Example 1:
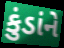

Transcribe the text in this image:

કુંડાંને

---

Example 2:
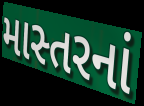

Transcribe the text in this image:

માસ્તરનાં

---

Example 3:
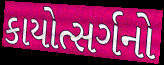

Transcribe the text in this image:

કાયોત્સર્ગનો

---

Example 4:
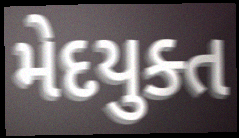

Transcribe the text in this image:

મેદયુક્ત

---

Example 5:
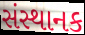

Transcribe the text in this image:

સંસ્થાનક